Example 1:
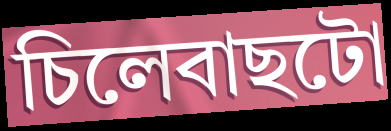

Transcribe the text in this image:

চিলেবাছটো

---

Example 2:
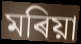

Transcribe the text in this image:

মৰিয়া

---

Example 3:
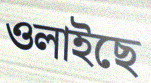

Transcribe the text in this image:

ওলাইছে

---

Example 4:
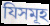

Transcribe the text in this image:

যিসমূহ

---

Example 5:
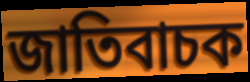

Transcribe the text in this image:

জাতিবাচক